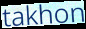
takhon